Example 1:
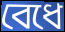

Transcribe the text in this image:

বেধে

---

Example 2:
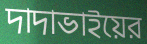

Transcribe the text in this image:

দাদাভাইয়ের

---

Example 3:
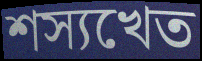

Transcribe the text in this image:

শস্যখেত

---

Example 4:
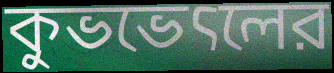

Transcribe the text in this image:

কুভভেৎলের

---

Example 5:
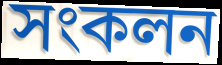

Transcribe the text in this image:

সংকলন